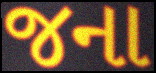
જના